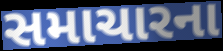
સમાચારના